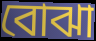
বোঝা